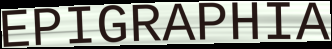
EPIGRAPHIA